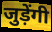
जुड़ेंगी